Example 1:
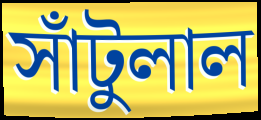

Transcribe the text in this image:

সাঁটুলাল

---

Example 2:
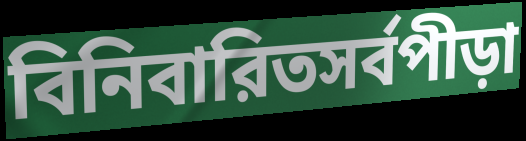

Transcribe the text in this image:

বিনিবারিতসর্বপীড়া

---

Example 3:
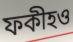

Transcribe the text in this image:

ফকীহও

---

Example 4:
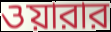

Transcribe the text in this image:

ওয়ারার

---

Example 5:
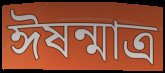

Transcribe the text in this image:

ঈষন্মাত্র